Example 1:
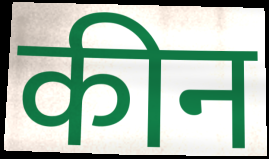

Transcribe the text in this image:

कीन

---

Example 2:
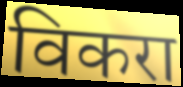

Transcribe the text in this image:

विकरा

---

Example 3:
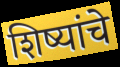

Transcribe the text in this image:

शिष्यांचे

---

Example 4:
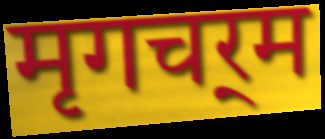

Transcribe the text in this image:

मृगचर्म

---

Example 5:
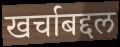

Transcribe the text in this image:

खर्चाबद्दल